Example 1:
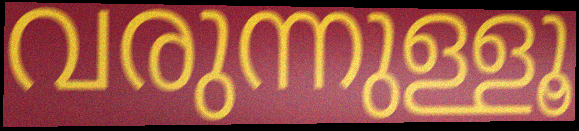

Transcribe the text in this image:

വരുന്നുള്ളൂ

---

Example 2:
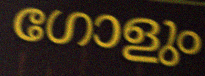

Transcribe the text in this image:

ഗോളും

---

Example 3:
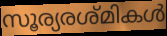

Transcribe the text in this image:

സൂര്യരശ്മികൾ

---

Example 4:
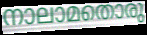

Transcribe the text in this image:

നാലാമതൊരു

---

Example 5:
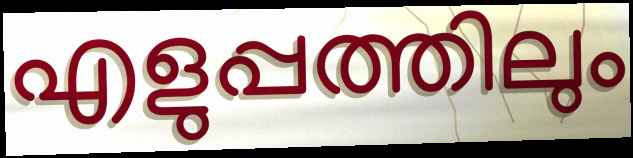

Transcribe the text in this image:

എളുപ്പത്തിലും